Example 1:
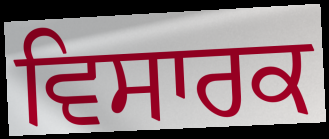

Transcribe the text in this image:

ਵਿਸਾਰਕ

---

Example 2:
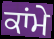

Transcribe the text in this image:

ਕਾਂਮੇ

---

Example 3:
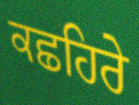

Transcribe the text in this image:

ਕਛਹਿਰੇ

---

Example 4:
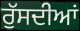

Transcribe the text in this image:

ਰੁੱਸਦੀਆਂ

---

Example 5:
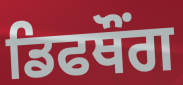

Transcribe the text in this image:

ਡਿਫਥੌਂਗ